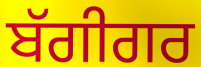
ਬੱਗੀਗਰ